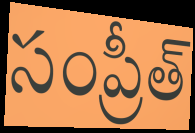
సంప్రీత్